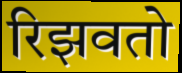
रिझवतो